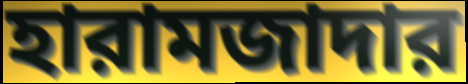
হারামজাদার